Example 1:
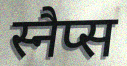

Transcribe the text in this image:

स्नैप्स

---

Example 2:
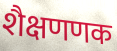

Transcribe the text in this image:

शैक्षणणक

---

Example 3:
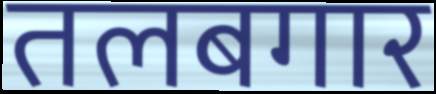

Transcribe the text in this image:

तलबगार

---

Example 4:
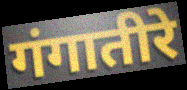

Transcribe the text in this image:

गंगातीरे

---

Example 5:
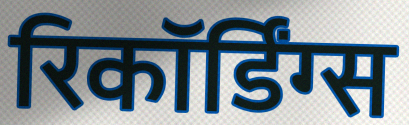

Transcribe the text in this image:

रिकॉर्डिंग्स